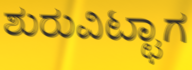
ಶುರುವಿಟ್ಟಾಗ